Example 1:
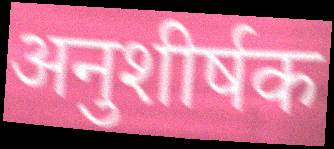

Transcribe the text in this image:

अनुशीर्षक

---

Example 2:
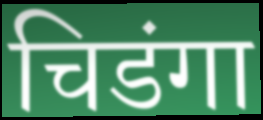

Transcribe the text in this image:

चिडंगा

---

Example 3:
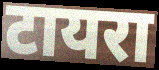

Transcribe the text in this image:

टायरा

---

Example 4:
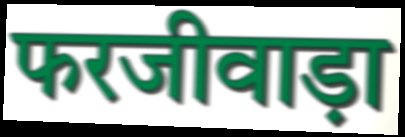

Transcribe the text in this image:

फरजीवाड़ा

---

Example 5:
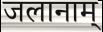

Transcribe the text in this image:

जलानाम्